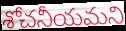
శోచనీయమని